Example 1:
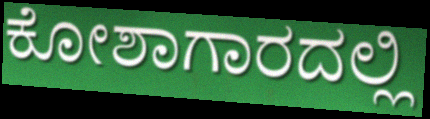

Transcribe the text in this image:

ಕೋಶಾಗಾರದಲ್ಲಿ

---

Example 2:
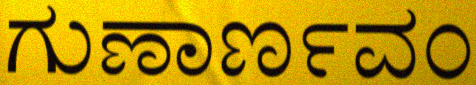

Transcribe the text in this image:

ಗುಣಾರ್ಣವಂ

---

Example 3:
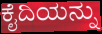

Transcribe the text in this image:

ಕೈದಿಯನ್ನು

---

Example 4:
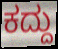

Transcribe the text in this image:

ಕದ್ದು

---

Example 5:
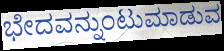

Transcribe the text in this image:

ಭೇದವನ್ನುಂಟುಮಾಡುವ